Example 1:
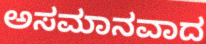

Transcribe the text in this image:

ಅಸಮಾನವಾದ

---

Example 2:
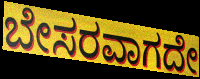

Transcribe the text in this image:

ಬೇಸರವಾಗದೇ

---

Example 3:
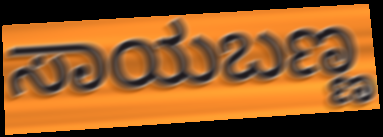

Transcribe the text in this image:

ಸಾಯಬಣ್ಣ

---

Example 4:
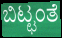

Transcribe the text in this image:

ಬಿಟ್ಟಂತೆ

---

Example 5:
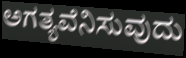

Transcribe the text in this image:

ಅಗತ್ಯವೆನಿಸುವುದು